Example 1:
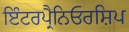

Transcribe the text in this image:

ਇੰਟਰਪ੍ਰੈਨਿਓਰਸ਼ਿਪ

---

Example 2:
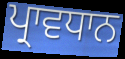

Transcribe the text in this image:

ਪ੍ਰਾਵਧਾਨ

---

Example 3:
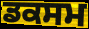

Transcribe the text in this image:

ਡਕਸਮ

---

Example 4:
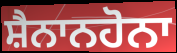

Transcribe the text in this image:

ਸ਼ੈਨਾਨਹੋਨਾ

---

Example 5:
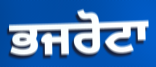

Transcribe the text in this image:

ਭਜਰੋਟਾ